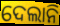
ଦେଲାନି